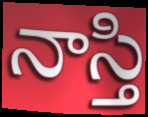
నాస్తి